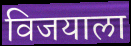
विजयाला